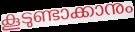
കൂടുണ്ടാക്കാനും